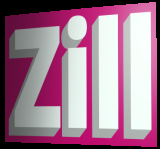
Zill